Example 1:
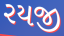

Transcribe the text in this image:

રયજી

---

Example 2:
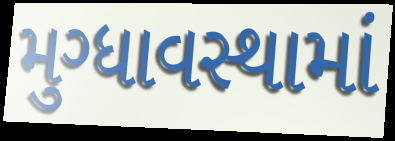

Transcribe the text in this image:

મુગ્ધાવસ્થામાં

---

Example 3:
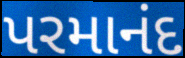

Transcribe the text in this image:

પરમાનંદ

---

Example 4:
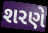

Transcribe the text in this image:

શરણે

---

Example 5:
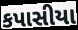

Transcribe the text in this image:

કપાસીયા